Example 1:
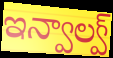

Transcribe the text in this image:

ఇన్వాల్వ్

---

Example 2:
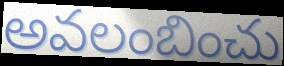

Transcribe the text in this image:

అవలంబించు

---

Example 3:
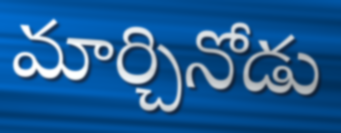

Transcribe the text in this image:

మార్చినోడు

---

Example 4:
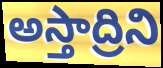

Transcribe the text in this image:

అస్తాద్రిని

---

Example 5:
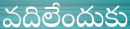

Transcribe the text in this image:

వదిలేందుకు